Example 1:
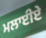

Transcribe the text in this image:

ਮਲਾਈਏ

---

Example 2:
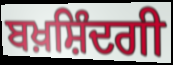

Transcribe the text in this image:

ਬਖ਼ਸ਼ਿੰਦਗੀ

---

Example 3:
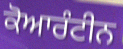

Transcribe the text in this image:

ਕੋਆਰੰਟੀਨ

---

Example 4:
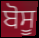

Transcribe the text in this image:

ਬੋਸੂ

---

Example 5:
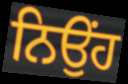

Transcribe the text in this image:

ਨਿਉਂਹ